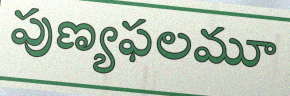
పుణ్యఫలమూ